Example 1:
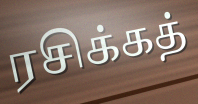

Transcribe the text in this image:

ரசிக்கத்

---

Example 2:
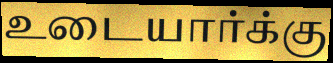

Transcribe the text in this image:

உடையார்க்கு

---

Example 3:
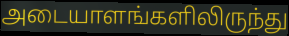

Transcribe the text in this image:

அடையாளங்களிலிருந்து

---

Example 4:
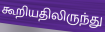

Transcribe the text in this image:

கூறியதிலிருந்து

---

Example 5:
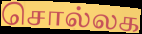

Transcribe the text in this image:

சொல்லக